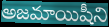
అజమాయిషీని